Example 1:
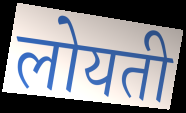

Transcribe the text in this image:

लोयती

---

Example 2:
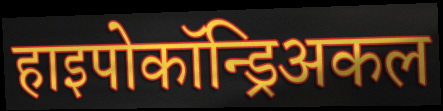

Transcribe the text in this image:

हाइपोकॉन्ड्रिअकल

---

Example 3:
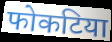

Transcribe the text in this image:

फोकटिया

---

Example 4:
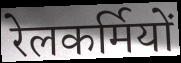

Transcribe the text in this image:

रेलकर्मियों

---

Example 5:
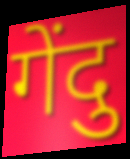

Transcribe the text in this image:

गेंदु